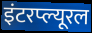
इंटरप्ल्यूरल